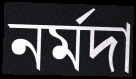
নৰ্মদা